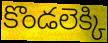
కొండలెక్కి